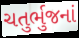
ચતુર્ભુજનાં